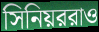
সিনিয়ররাও